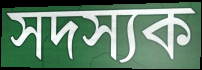
সদস্যক